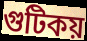
গুটিকয়